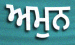
ਅਮੁਨ